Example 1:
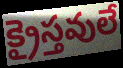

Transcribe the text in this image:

క్రైస్తవులే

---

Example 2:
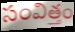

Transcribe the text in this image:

సంవిత్తం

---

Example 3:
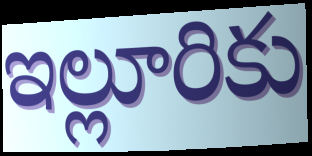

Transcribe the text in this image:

ఇల్లూరికు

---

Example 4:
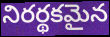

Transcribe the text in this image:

నిరర్థకమైన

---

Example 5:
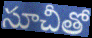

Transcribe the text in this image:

సూచీతో